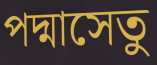
পদ্মাসেতু